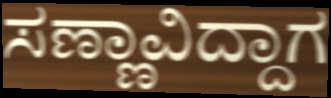
ಸಣ್ಣಾವಿದ್ದಾಗ